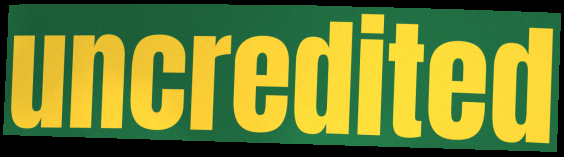
uncredited